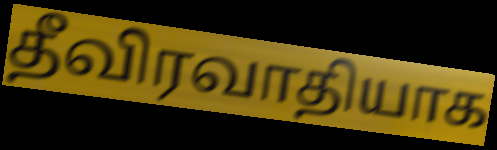
தீவிரவாதியாக